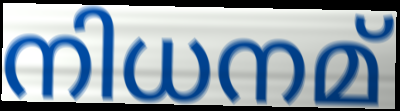
നിധനമ്